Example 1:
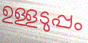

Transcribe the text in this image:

ഉള്ളടുപ്പം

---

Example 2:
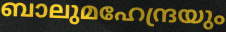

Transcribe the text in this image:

ബാലുമഹേന്ദ്രയും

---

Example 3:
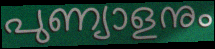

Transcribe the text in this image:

പുണ്യാളനും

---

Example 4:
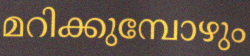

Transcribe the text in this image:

മറിക്കുമ്പോഴും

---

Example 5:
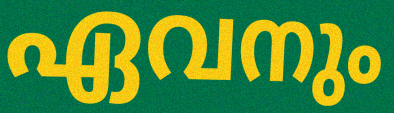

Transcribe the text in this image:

ഏവനും